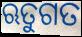
ଋତୁଗତ